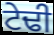
ਟੇਢੀ